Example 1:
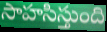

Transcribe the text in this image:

సాహసిస్తుంది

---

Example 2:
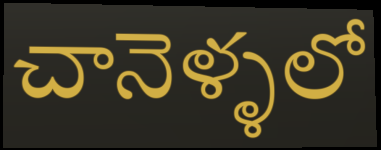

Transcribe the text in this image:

చానెళ్ళలో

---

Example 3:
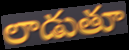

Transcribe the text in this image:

లాడుతూ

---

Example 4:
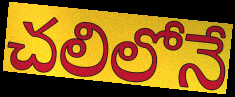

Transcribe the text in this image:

చలిలోనే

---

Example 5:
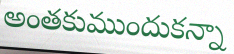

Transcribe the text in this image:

అంతకుముందుకన్నా